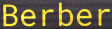
Berber